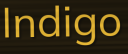
Indigo